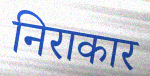
निराकार